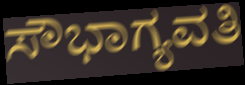
ಸೌಭಾಗ್ಯವತಿ